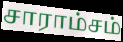
சாராம்சம்